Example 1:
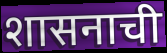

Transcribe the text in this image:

शासनाची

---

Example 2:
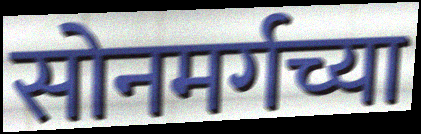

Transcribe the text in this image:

सोनमर्गच्या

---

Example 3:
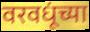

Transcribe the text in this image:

वरवधूंच्या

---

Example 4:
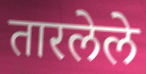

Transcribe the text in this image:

तारलेले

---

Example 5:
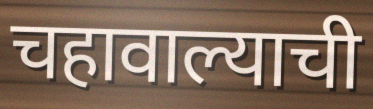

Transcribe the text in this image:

चहावाल्याची